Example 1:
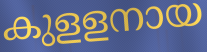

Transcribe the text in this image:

കുളളനായ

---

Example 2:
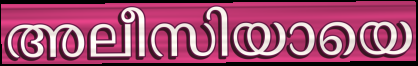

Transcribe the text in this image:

അലീസിയായെ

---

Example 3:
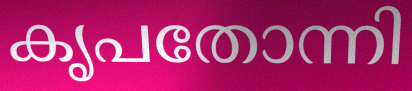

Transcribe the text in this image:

കൃപതോന്നി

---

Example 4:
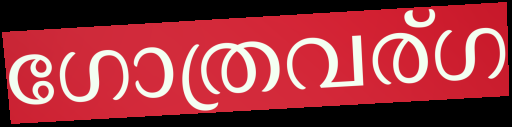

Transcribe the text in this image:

ഗോത്രവര്ഗ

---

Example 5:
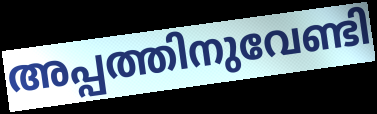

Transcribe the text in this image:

അപ്പത്തിനുവേണ്ടി